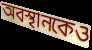
অবস্থানকেও